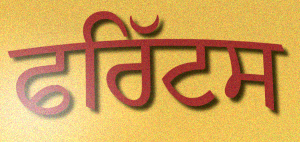
ਫਰਿੱਟਸ